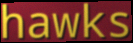
hawks